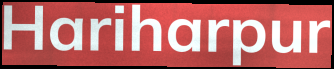
Hariharpur